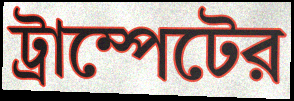
ট্রাম্পেটের